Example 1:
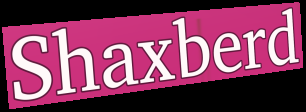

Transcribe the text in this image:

Shaxberd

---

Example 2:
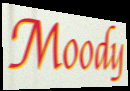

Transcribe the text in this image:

Moody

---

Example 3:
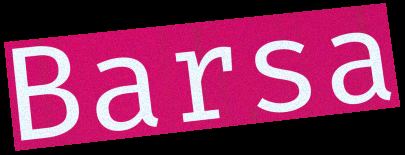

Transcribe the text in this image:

Barsa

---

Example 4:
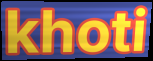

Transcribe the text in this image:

khoti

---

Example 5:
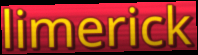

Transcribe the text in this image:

limerick